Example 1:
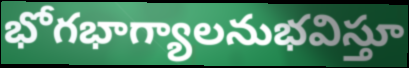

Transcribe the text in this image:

భోగభాగ్యాలనుభవిస్తూ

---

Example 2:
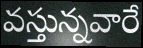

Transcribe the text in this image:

వస్తున్నవారే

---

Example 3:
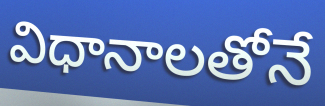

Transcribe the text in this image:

విధానాలతోనే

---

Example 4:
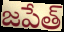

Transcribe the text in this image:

జపేత్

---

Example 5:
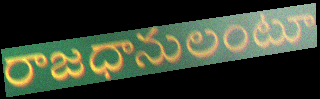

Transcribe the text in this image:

రాజధానులంటూ